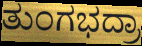
ತುಂಗಭದ್ರಾ